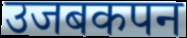
उजबकपन